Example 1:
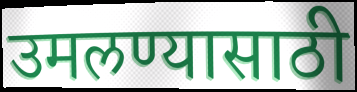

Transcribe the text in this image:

उमलण्यासाठी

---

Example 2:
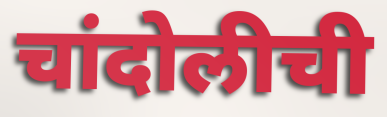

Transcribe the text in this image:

चांदोलीची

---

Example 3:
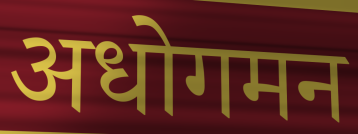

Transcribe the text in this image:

अधोगमन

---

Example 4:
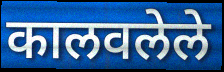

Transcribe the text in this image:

कालवलेले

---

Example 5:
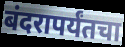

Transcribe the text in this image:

बंदरापर्यंतचा